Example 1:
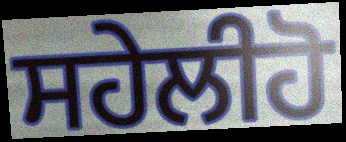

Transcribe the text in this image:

ਸਹੇਲੀਹੋ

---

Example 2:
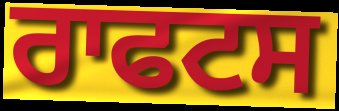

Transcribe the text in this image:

ਰਾਫਟਸ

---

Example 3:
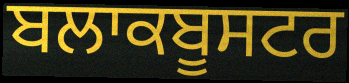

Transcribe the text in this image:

ਬਲਾਕਬੂਸਟਰ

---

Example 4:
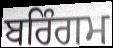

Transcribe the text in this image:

ਬਰਿੰਗਮ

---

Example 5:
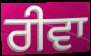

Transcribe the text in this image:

ਰੀਵਾ